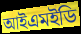
আইএমইডি